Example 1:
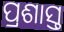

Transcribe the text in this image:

ପ୍ରଶାସ୍ତ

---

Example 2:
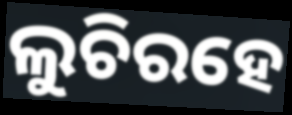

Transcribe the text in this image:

ଲୁଚିରହେ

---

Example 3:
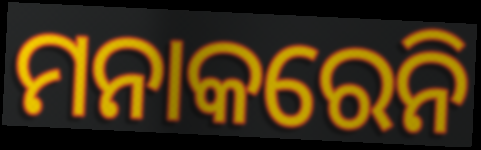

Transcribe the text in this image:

ମନାକରେନି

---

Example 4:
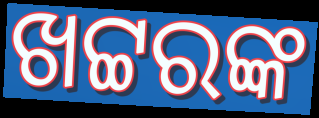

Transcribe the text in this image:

ଖଟ୍ଟରଙ୍କ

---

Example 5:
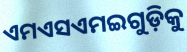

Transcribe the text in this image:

ଏମଏସଏମଇଗୁଡ଼ିକୁ